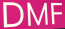
DMF